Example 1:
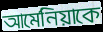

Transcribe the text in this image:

আর্মেনিয়াকে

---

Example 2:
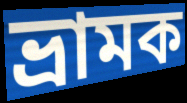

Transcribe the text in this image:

ভ্রামক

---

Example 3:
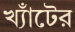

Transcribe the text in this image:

খ্যাঁটের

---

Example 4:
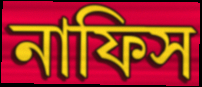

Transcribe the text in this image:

নাফিস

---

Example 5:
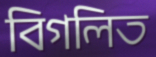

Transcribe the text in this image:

বিগলিত